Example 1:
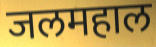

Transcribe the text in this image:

जलमहाल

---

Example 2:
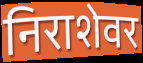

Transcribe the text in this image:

निराशेवर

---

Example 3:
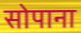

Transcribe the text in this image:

सोपाना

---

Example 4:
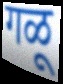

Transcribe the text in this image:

गळू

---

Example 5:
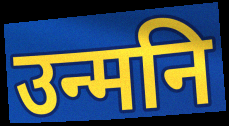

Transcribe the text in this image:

उन्मनि